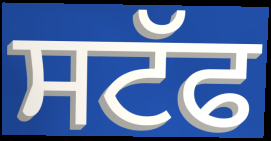
ਸਟੱਫ